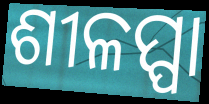
ଶୀଳପ୍ପା